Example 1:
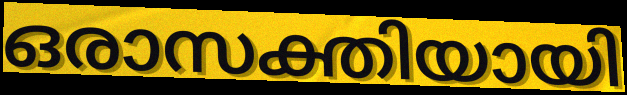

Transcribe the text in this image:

ഒരാസക്തിയായി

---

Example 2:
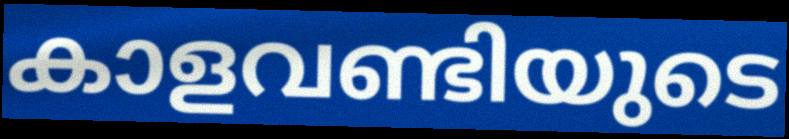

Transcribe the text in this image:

കാളവണ്ടിയുടെ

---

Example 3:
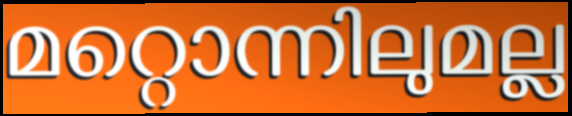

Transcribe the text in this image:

മറ്റൊന്നിലുമല്ല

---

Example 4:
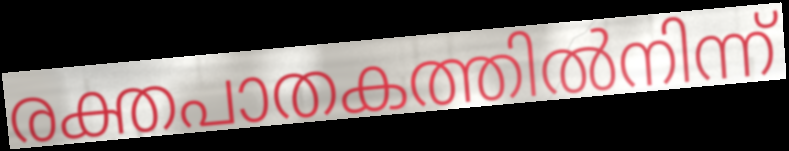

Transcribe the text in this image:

രക്തപാതകത്തിൽനിന്ന്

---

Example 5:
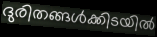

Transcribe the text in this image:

ദുരിതങ്ങൾക്കിടയിൽ